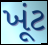
ખૂંટ